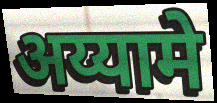
अय्यामे